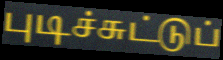
புடிச்சுட்டுப்